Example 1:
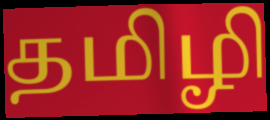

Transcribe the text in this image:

தமிழி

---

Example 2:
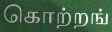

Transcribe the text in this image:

கொற்றங்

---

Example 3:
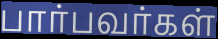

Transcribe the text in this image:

பார்பவர்கள்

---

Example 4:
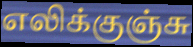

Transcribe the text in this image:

எலிக்குஞ்சு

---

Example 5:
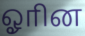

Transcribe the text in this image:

ஓரின